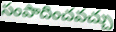
సంపాదించవచ్చు